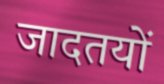
जादतयों